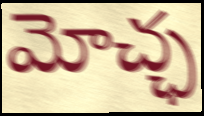
మోచ్ఛ